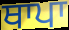
ਥਾਪਾ